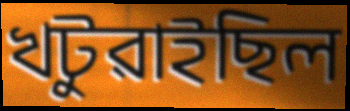
খটুৱাইছিল